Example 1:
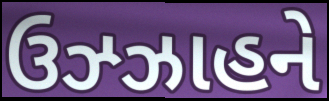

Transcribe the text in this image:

ઉઝ્ઝાહને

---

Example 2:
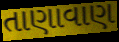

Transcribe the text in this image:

તાણાવાણ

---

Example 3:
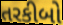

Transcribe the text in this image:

તરકીબો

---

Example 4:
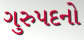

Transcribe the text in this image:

ગુરુપદનો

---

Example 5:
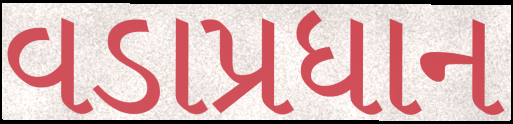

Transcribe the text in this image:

વડાપ્રધાન